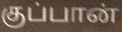
குப்பான்